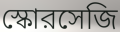
স্কোরসেজি